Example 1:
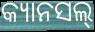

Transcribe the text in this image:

କ୍ୟାନସଲ୍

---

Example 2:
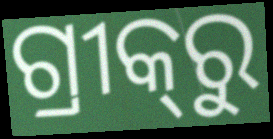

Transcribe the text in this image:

ଗ୍ରୀକ୍‌ରୁ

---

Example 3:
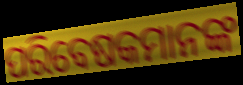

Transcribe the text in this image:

ପରିବେଷକମାନଙ୍କ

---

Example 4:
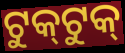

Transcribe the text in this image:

ଟୁକ୍‌ଟୁକ୍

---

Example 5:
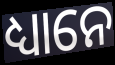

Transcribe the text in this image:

ଧ୍ୟାନେ